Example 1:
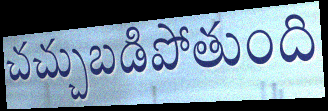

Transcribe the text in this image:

చచ్చుబడిపోతుంది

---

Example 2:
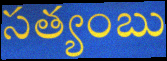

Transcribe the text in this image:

సత్యంబు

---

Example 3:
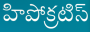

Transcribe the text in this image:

హిపోక్రటిస్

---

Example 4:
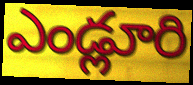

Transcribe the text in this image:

ఎండ్లూరి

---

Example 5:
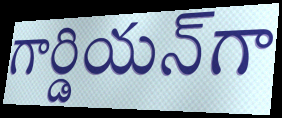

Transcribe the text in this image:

గార్డియన్‌గా